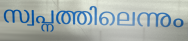
സ്വപ്നത്തിലെന്നും